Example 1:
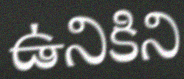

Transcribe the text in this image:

ఉనికిని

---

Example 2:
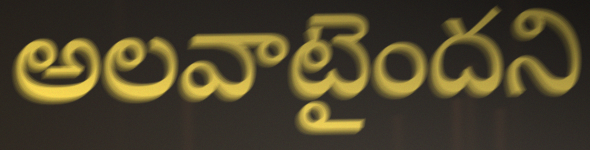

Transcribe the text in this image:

అలవాటైందని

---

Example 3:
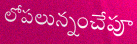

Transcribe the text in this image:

లోపలున్నంచేపూ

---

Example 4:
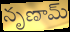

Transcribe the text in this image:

నృణామ్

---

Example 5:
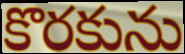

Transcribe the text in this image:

కొరకును